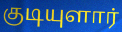
குடியுளார்